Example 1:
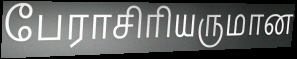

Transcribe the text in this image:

பேராசிரியருமான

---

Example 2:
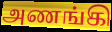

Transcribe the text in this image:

அணங்கி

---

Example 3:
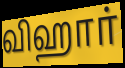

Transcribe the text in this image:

விஹார்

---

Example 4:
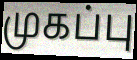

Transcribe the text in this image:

முகப்பு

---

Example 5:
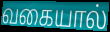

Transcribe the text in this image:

வகையால்